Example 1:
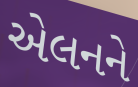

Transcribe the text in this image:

એલનને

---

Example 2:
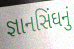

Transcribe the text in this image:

જ્ઞાનસિંઘનું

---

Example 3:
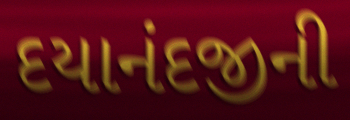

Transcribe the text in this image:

દયાનંદજીની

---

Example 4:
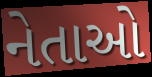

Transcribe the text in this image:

નેતાઓ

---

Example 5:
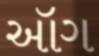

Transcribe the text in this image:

ઑગ